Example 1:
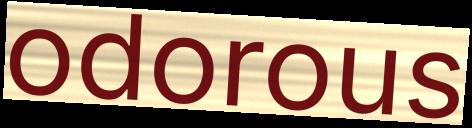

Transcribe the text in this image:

odorous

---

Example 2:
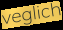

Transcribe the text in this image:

veglich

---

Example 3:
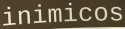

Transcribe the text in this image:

inimicos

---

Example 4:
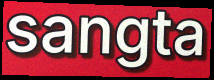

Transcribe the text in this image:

sangta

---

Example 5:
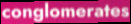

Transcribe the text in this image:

conglomerates